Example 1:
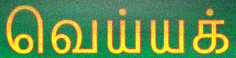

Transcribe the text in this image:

வெய்யக்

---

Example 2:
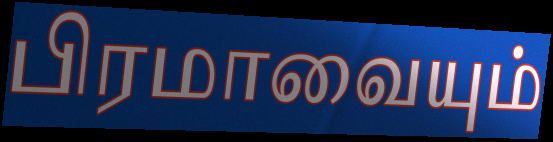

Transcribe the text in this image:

பிரமாவையும்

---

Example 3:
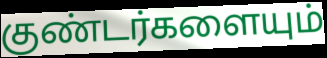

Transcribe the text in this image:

குண்டர்களையும்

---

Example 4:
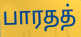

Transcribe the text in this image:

பாரதத்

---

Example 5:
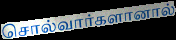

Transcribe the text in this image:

சொல்வார்களானால்